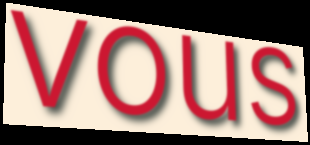
vous